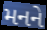
મનને